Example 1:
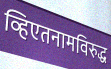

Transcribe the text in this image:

व्हिएतनामविरुद्ध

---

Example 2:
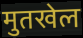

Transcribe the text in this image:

मुतखेल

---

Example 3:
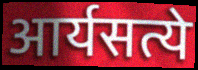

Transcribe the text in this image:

आर्यसत्ये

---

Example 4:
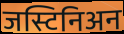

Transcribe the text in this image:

जस्टिनिअन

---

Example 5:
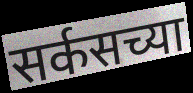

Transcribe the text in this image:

सर्कसच्या